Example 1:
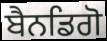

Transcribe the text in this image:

ਬੈਨਡਿਗੋ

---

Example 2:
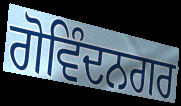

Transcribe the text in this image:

ਗੋਵਿੰਦਨਗਰ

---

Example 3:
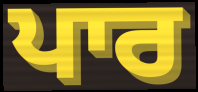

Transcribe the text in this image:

ਪਾਰ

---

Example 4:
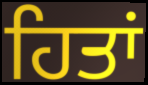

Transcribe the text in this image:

ਹਿਤਾਂ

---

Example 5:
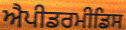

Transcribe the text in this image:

ਐਪੀਡਰਮੀਡਿਸ